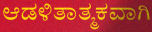
ಆಡಳಿತಾತ್ಮಕವಾಗಿ